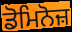
ਡੋਮਿਨੋਜ਼